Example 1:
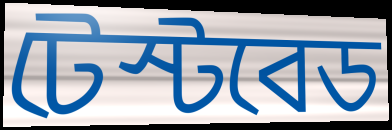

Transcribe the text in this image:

টেস্টবেড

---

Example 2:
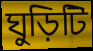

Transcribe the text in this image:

ঘুড়িটি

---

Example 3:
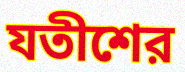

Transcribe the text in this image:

যতীশের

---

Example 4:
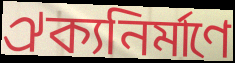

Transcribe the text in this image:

ঐক্যনির্মাণে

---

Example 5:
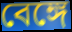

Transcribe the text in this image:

বেঙ্গে